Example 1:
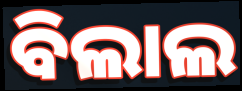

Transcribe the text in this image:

ବିଲାଲ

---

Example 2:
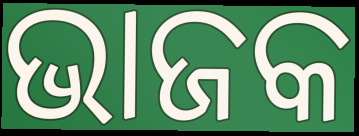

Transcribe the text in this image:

ଭାଜକ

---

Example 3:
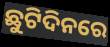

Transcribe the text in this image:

ଛୁଟିଦିନରେ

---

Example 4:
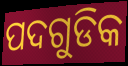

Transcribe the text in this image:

ପଦଗୁଡିକ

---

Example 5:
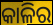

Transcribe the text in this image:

କାଳିର